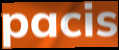
pacis